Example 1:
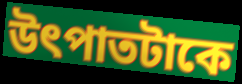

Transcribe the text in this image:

উৎপাতটাকে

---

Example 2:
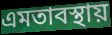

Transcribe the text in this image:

এমতাবস্থায়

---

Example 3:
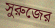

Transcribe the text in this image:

সুরুজের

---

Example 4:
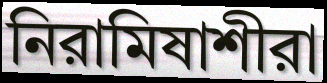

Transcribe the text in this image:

নিরামিষাশীরা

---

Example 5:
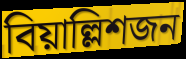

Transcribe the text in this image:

বিয়াল্লিশজন